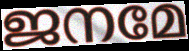
ജനമേ